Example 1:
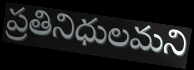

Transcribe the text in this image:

ప్రతినిధులమని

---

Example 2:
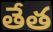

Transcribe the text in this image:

తేత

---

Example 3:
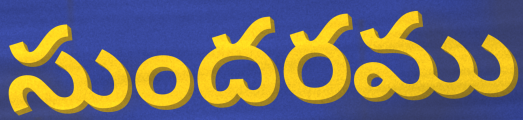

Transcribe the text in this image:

సుందరము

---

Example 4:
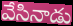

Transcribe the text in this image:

వేసినాడు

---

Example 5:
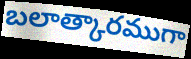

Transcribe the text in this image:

బలాత్కారముగా